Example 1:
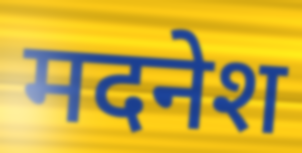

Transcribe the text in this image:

मदनेश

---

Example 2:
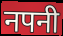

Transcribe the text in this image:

नपनी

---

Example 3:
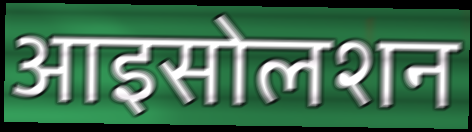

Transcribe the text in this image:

आइसोलशन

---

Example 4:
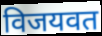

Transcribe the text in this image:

विजयवत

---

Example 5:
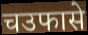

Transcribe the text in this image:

चउफासे